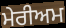
ਮੇਰੀਅਮ